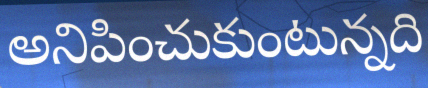
అనిపించుకుంటున్నది